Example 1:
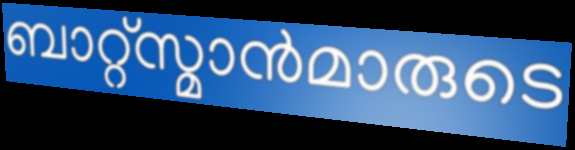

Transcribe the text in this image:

ബാറ്റ്സ്മാൻമാരുടെ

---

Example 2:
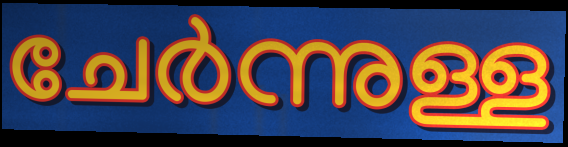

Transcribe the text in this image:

ചേർന്നുള്ള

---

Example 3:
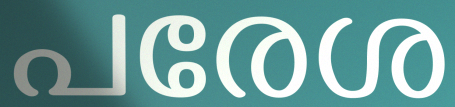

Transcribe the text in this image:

പരേശ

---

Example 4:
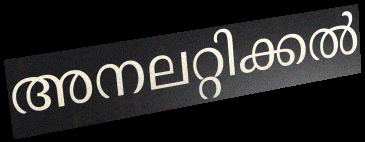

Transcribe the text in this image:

അനലറ്റിക്കൽ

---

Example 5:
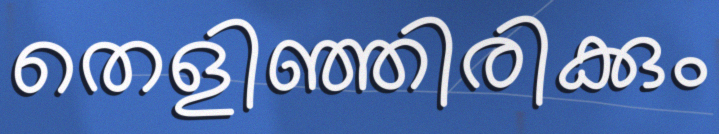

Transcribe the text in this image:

തെളിഞ്ഞിരിക്കും